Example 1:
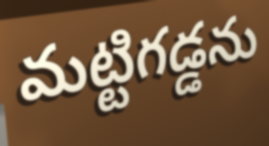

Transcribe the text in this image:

మట్టిగడ్డను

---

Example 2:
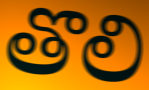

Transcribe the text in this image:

తొలి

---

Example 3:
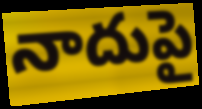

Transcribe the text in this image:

నాదుపై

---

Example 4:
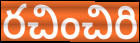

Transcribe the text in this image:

రచించిరి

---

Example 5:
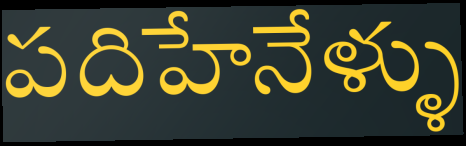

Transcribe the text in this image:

పదిహేనేళ్ళు